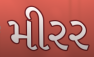
મીરર